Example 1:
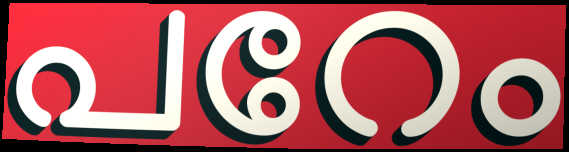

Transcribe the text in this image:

പറേം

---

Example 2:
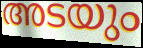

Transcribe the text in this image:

അടയും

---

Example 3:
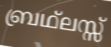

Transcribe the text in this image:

ബ്രഥ്ലസ്സ്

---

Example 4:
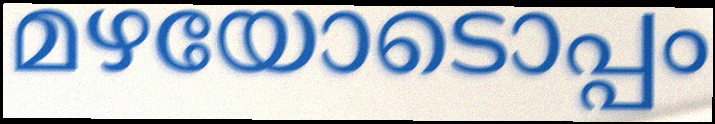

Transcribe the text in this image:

മഴയോടൊപ്പം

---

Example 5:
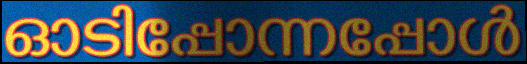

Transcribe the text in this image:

ഓടിപ്പോന്നപ്പോൾ